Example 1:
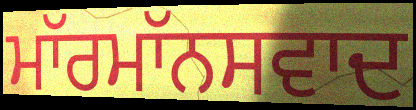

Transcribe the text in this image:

ਮਾੱਰਮਾੱਨਸਵਾਦ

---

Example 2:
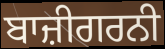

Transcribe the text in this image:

ਬਾਜ਼ੀਗਰਨੀ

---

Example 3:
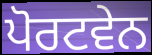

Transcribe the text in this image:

ਪੋਰਟਵੇਨ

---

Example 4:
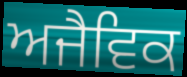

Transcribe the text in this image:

ਅਜੈਵਿਕ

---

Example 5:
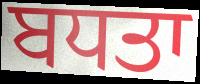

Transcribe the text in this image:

ਬਧਤਾ